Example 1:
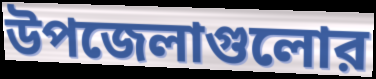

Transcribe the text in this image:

উপজেলাগুলোর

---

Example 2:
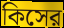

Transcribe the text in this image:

কিসের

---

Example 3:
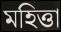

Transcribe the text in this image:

মহিত্তা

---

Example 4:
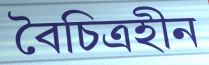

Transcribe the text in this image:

বৈচিত্রহীন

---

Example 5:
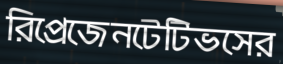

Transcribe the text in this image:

রিপ্রেজেনটেটিভসের